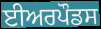
ਈਅਰਪੌਡਸ